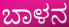
ಬಾಳನ